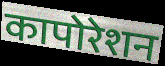
कापोरेशन